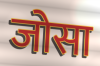
जोसा